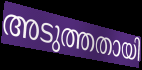
അടുത്തതായി